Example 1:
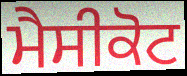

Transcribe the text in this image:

ਮੈਸੀਕੋਟ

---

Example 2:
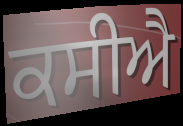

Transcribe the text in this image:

ਕਸੀਐ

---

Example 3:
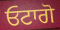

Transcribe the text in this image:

ਓਟਾਗੋ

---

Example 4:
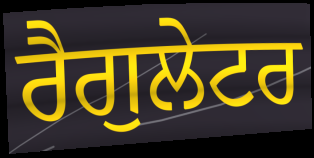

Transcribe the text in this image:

ਰੈਗੁਲੇਟਰ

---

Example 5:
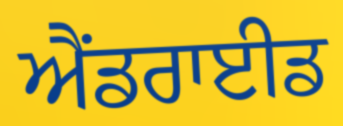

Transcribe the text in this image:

ਐਂਡਰਾਈਡ